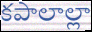
కపాలాల్లా